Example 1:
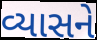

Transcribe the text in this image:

વ્યાસને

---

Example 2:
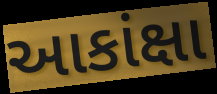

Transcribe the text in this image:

આકાંક્ષા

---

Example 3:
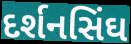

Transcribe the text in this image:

દર્શનસિંઘ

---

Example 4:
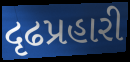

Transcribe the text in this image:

દૃઢપ્રહારી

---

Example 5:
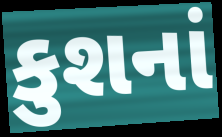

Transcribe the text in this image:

કુશનાં